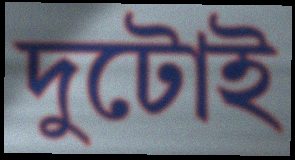
দুটোই